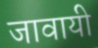
जावायी